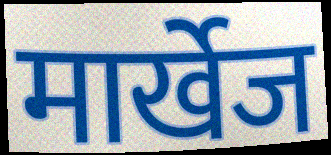
मार्खेज